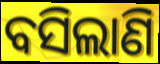
ବସିଲାଣି